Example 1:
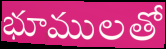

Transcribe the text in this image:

భూములతో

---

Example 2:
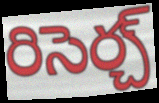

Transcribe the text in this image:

రిసెర్చ్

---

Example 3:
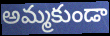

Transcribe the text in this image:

అమ్మకుండా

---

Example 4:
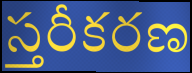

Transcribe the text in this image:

స్తరీకరణ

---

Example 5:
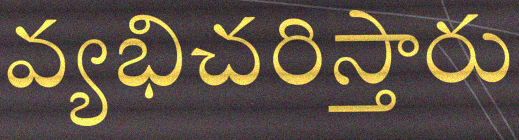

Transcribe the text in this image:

వ్యభిచరిస్తారు